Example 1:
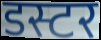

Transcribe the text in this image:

डस्टर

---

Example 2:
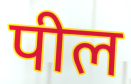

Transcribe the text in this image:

पील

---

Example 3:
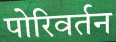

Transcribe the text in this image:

पोरिवर्तन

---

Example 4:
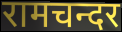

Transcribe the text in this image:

रामचन्दर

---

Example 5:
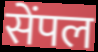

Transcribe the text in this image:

सेंपल